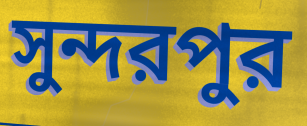
সুন্দরপুর